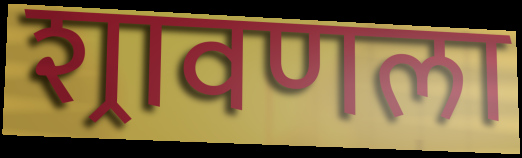
श्रावणला